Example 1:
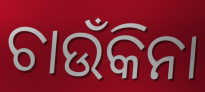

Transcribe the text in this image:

ଚାଉଁକିନା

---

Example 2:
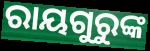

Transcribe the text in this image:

ରାୟଗୁରୁଙ୍କ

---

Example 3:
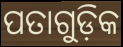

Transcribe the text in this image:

ପତାଗୁଡ଼ିକ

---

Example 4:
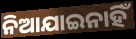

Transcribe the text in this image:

ନିଆଯାଇନାହିଁ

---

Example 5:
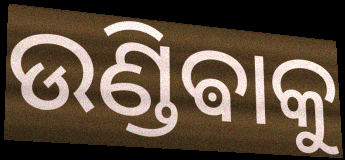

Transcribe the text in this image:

ଉଣ୍ଡିଵାକୁ